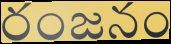
రంజనం